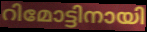
റിമോട്ടിനായി